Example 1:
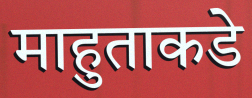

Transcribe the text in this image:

माहुताकडे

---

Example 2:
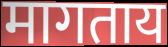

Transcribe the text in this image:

मागताय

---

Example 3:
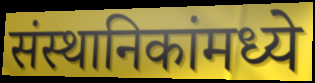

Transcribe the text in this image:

संस्थानिकांमध्ये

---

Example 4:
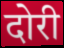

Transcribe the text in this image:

दोरी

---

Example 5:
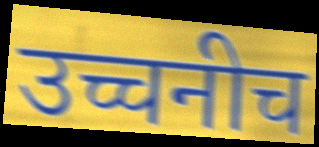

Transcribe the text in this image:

उच्चनीच